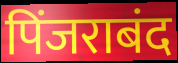
पिंजराबंद